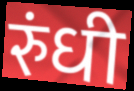
रुंधी